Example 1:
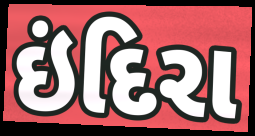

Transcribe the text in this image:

ઇંદિરા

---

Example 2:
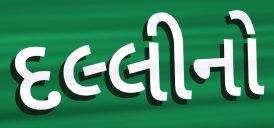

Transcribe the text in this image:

દલ્લીનો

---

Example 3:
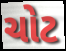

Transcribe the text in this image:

ચોટ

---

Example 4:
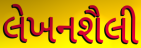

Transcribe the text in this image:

લેખનશૈલી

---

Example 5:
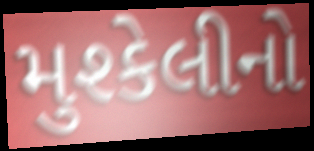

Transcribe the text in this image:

મુશ્કેલીનો